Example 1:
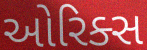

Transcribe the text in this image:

ઓરિક્સ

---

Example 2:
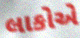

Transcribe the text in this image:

લાકોએ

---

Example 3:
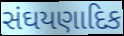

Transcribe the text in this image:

સંઘયણાદિક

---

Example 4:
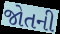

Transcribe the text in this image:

જોતની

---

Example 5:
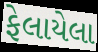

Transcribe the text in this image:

ફેલાયેલા